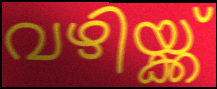
വഴിയ്ക്ക്